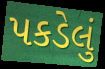
પકડેલું